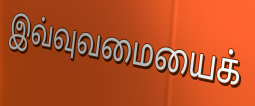
இவ்வுவமையைக்